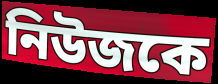
নিউজকে